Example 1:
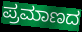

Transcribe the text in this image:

ಪ್ರಮಾಣದ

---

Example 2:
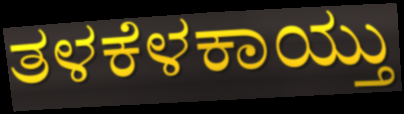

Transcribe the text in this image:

ತಳಕೆಳಕಾಯ್ತು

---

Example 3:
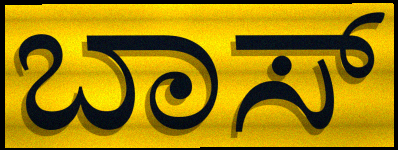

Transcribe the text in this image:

ಬಾಸ್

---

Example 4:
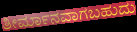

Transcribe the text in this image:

ತೀರ್ಮಾನವಾಗಬಹುದು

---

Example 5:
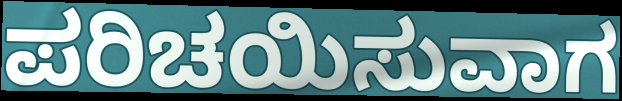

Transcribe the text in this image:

ಪರಿಚಯಿಸುವಾಗ